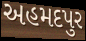
અહમદપુર